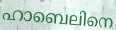
ഹാബെലിനെ